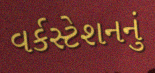
વર્કસ્ટેશનનું